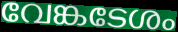
വേങ്കടേശം